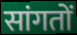
सांगतों